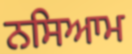
ਨਸਿਆਮ